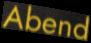
Abend